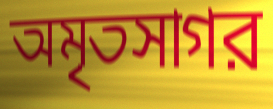
অমৃতসাগর